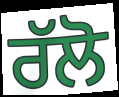
ਰੱਲੋ